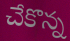
చేకొన్న